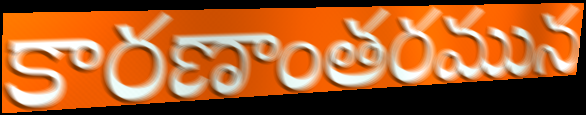
కారణాంతరమున